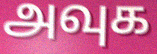
அவுக